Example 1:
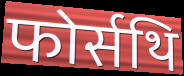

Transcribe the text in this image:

फोर्सथि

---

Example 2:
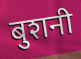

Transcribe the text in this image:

बुशनी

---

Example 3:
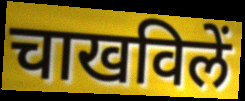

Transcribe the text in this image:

चाखविलें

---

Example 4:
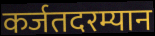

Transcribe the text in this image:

कर्जतदरम्यान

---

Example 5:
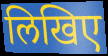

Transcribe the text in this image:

लिखिए